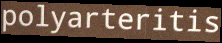
polyarteritis